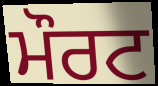
ਮੌਰਟ